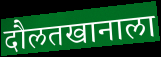
दौलतखानाला